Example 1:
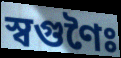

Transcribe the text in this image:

স্বগুণৈঃ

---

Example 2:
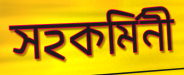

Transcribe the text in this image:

সহকর্মিনী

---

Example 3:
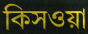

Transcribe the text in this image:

কিসওয়া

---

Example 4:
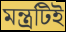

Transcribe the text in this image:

মন্ত্রটিই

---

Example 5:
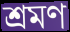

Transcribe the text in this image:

শ্রমণ